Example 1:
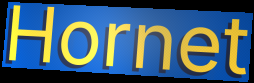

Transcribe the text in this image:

Hornet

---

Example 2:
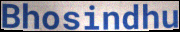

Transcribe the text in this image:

Bhosindhu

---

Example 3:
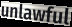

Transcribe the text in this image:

unlawful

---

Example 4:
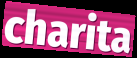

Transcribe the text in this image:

charita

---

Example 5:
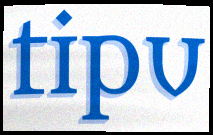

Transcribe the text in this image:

tipu